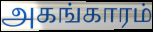
அகங்காரம்